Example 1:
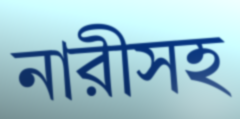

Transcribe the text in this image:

নারীসহ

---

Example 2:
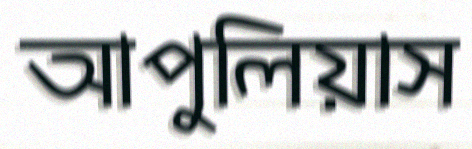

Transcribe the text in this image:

আপুলিয়াস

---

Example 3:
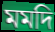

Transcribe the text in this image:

মমদি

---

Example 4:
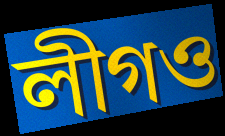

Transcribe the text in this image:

লীগও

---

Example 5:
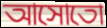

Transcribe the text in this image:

আসোতো